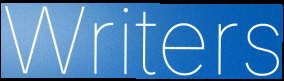
Writers